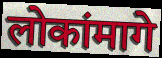
लोकांमागे